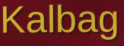
Kalbag